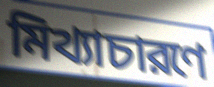
মিথ্যাচারণে